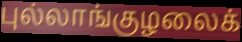
புல்லாங்குழலைக்